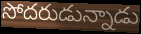
సోదరుడున్నాడు